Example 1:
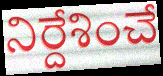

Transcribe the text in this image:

నిర్దేశించే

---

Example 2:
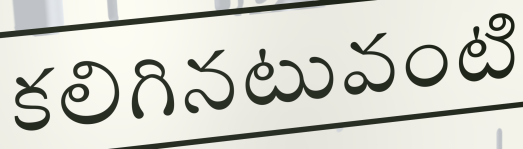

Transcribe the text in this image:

కలిగినటువంటి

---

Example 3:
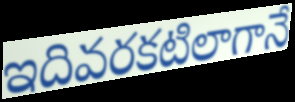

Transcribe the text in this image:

ఇదివరకటిలాగానే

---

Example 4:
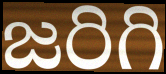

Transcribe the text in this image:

జరిగి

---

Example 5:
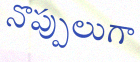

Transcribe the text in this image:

నొప్పులుగా